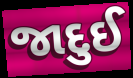
જાદુઈ